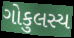
ગોકુલસ્ય